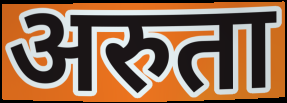
अरुता